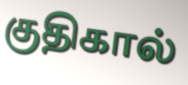
குதிகால்